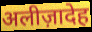
अलीज़ादेह